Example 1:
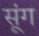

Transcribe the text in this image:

सूंग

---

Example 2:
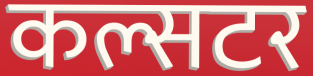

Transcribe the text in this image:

कल्सटर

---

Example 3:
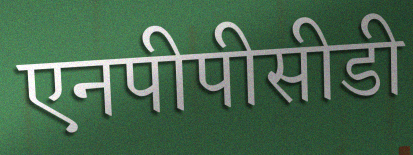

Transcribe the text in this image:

एनपीपीसीडी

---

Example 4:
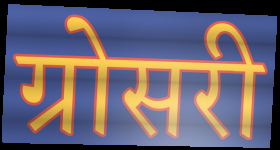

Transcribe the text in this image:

ग्रोसरी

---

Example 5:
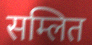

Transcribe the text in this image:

सम्लित